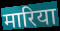
मारिया